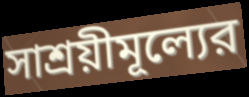
সাশ্রয়ীমূল্যের